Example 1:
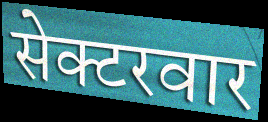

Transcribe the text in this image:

सेक्टरवार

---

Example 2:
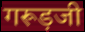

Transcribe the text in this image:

गरूड़जी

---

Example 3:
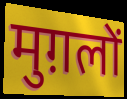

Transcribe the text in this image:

मुग़लों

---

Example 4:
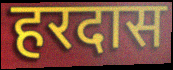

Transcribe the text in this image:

हरदास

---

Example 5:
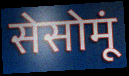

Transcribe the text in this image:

सेसोमूं